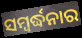
ସମ୍ବର୍ଦ୍ଧନାର